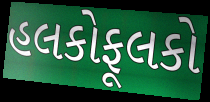
હલકોફૂલકો